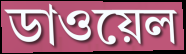
ডাওয়েল